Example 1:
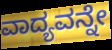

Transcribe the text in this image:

ವಾದ್ಯವನ್ನೇ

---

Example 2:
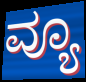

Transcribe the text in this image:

ವ್ಯೂ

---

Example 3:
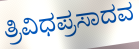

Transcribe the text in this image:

ತ್ರಿವಿಧಪ್ರಸಾದವ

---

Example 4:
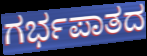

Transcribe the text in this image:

ಗರ್ಭಪಾತದ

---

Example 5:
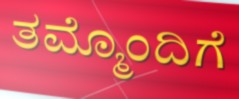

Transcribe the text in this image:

ತಮ್ಮೊಂದಿಗೆ